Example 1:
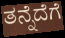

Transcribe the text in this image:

ತನ್ನೆದೆಗೆ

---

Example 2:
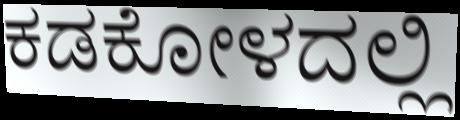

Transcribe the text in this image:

ಕಡಕೋಳದಲ್ಲಿ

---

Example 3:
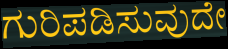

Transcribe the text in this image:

ಗುರಿಪಡಿಸುವುದೇ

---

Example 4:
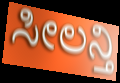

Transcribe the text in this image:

ಸೀಲನ್ತಿ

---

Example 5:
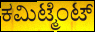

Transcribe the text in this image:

ಕಮಿಟ್ಮೆಂಟ್